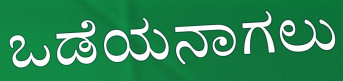
ಒಡೆಯನಾಗಲು